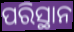
ପରିସ୍ଥାନ